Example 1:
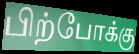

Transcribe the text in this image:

பிற்போக்கு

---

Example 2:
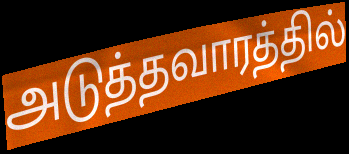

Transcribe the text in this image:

அடுத்தவாரத்தில்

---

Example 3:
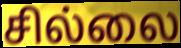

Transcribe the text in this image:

சில்லை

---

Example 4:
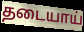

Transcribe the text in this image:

தடையாய்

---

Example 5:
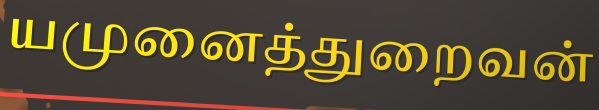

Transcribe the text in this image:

யமுனைத்துறைவன்